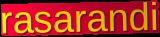
rasarandi